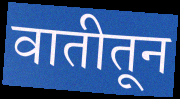
वातीतून